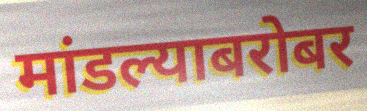
मांडल्याबरोबर